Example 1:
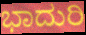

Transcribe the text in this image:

ಭಾದುರಿ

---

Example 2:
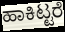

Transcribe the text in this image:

ಹಾಕಿಟ್ಟರೆ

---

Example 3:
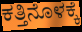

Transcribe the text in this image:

ಕತ್ತಿನೊಳಕ್ಕೆ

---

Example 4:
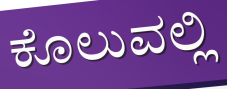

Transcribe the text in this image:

ಕೊಲುವಲ್ಲಿ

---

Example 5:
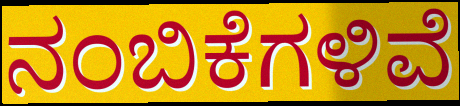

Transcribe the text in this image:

ನಂಬಿಕೆಗಳಿವೆ